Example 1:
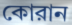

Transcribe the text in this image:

কোরান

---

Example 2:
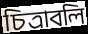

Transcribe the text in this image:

চিত্রাবলি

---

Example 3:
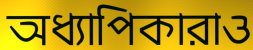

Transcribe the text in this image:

অধ্যাপিকারাও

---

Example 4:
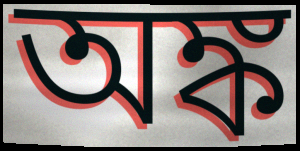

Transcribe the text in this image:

অঙ্ক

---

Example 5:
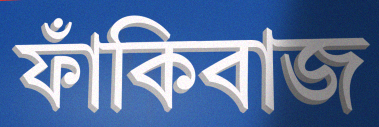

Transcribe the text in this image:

ফাঁকিবাজ